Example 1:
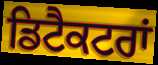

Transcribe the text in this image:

ਡਿਟੈਕਟਰਾਂ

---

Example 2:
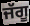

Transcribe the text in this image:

ਜੱਗੂ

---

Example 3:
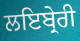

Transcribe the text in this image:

ਲਇਬ੍ਰੇਰੀ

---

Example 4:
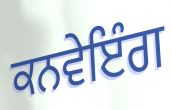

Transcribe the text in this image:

ਕਨਵੇਇੰਗ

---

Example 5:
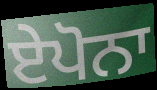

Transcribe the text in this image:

ਏਪੋਨਾ